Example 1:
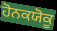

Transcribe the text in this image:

ਹੋਨਕਯੋਕੂ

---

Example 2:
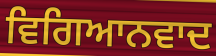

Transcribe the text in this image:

ਵਿਗਿਆਨਵਾਦ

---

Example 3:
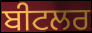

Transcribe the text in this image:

ਬੀਟਲਰ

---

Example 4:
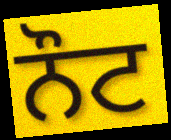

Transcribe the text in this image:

ਨੌਟ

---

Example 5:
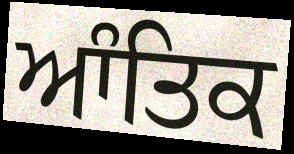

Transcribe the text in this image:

ਆੰਤਿਕ